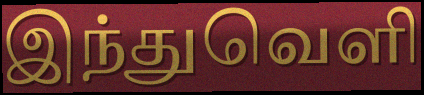
இந்துவெளி